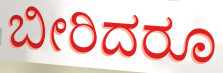
ಬೀರಿದರೂ